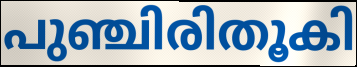
പുഞ്ചിരിതൂകി